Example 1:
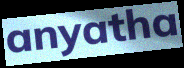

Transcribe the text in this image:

anyatha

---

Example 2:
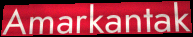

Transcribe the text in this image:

Amarkantak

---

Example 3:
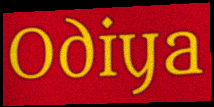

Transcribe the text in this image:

Odiya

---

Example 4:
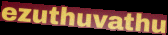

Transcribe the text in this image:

ezuthuvathu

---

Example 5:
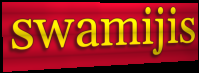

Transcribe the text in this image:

swamijis